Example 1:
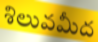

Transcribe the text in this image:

శిలువమీద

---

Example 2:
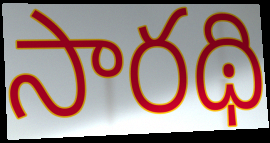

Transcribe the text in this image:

సారథి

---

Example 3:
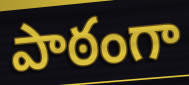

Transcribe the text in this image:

పాఠంగా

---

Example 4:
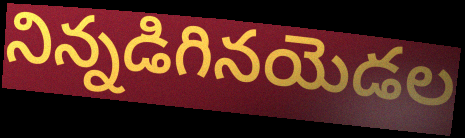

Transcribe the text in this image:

నిన్నడిగినయెడల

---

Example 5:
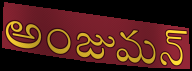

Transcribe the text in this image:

అంజుమన్